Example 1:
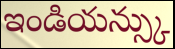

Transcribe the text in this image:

ఇండియన్స్కు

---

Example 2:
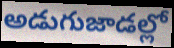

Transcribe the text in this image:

అడుగుజాడల్లో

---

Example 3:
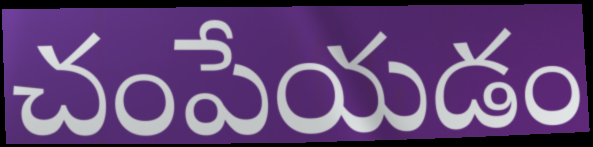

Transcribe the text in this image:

చంపేయడం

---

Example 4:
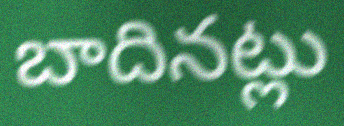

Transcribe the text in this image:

బాదినట్లు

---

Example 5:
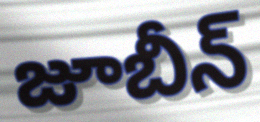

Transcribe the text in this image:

జూబీన్